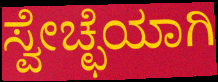
ಸ್ವೇಚ್ಛೆಯಾಗಿ